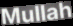
Mullah